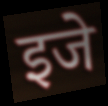
इजे